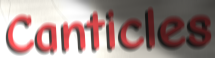
Canticles